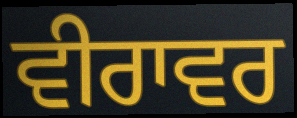
ਵੀਰਾਵਰ